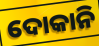
ଦୋକାନି